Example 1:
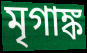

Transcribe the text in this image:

মৃগাঙ্ক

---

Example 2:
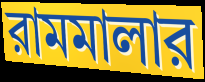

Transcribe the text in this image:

রামমালার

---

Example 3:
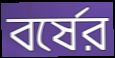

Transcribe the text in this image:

বর্ষের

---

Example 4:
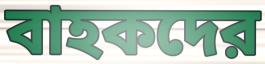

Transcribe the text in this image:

বাহকদের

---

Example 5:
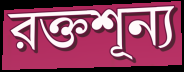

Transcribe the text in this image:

রক্তশূন্য